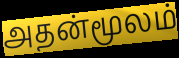
அதன்மூலம்